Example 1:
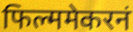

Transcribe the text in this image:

फिल्ममेकरनं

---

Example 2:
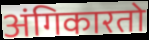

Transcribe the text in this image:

अंगिकारतो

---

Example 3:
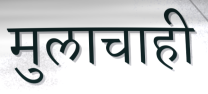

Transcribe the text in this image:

मुलाचाही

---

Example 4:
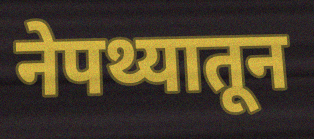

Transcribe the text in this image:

नेपथ्यातून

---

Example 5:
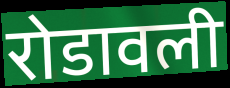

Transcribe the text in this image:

रोडावली